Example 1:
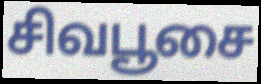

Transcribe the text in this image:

சிவபூசை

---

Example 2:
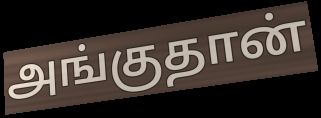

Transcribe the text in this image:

அங்குதான்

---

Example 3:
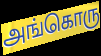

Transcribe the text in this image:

அங்கொரு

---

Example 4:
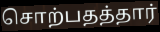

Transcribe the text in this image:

சொற்பதத்தார்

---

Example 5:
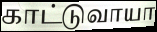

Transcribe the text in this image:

காட்டுவாயா